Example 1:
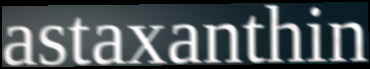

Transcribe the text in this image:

astaxanthin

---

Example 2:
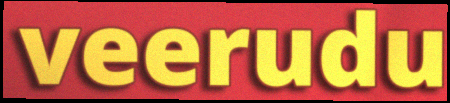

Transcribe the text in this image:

veerudu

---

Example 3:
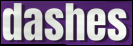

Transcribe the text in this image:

dashes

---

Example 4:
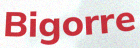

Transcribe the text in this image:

Bigorre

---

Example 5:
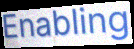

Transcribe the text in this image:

Enabling